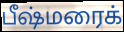
பீஷ்மரைக்